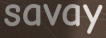
savay